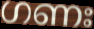
ഗണഃ